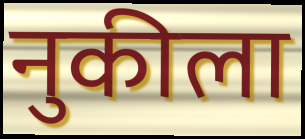
नुकीला